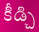
కీడ్చి